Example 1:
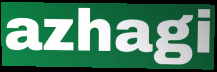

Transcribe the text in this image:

azhagi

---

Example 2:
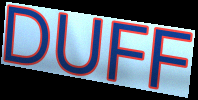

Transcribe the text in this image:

DUFF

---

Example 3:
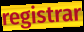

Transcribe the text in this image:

registrar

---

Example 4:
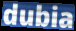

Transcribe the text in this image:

dubia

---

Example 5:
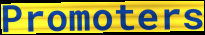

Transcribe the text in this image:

Promoters